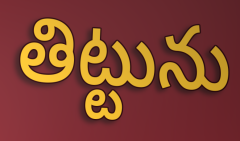
తిట్టును